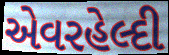
એવરહેલ્દી